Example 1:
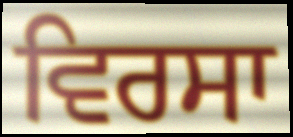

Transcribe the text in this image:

ਵਿਰਸਾ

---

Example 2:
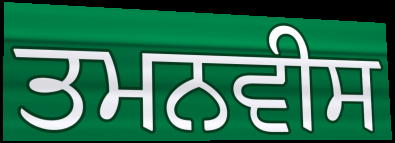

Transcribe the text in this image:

ਤਮਨਵੀਸ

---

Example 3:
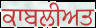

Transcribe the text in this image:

ਕਾਬਲੀਅਤ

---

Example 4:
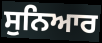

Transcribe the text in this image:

ਸੁਨਿਆਰ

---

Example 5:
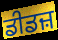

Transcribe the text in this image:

ਡੀਡਜ਼